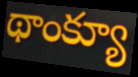
థాంక్యూ